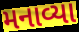
મનાવ્યા